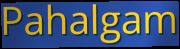
Pahalgam